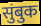
सुंबुक